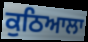
ਕੁਠਿਆਲਾ